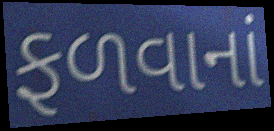
ફળવાનાં